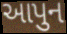
આપુન